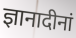
ज्ञानादीनां